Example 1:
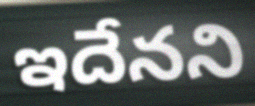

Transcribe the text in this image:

ఇదేనని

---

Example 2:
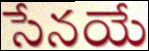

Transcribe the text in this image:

సేనయే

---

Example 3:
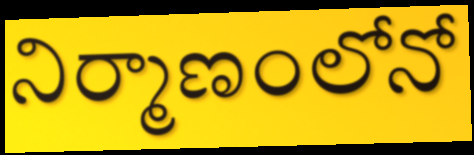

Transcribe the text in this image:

నిర్మాణంలోనో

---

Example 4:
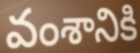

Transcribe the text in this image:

వంశానికి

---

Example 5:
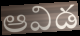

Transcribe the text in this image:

ఆవిడ